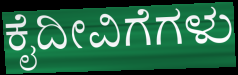
ಕೈದೀವಿಗೆಗಳು